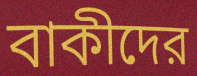
বাকীদের